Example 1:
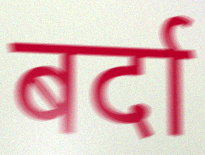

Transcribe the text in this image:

बर्दा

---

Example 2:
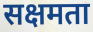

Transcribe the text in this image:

सक्षमता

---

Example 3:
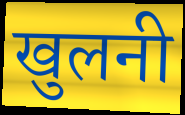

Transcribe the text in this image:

खुलनी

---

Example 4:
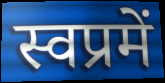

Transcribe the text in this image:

स्वप्रमें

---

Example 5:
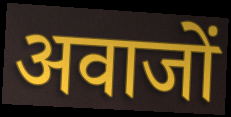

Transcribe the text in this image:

अवाजों